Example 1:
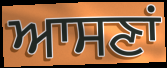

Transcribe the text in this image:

ਆਸਣਾਂ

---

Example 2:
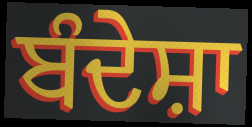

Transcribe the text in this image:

ਬੰਦੇਸ਼ਾ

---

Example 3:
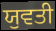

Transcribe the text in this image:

ਯੁਵਤੀ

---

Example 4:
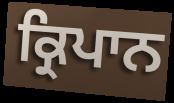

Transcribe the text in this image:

ਕ੍ਰਿਪਾਨ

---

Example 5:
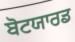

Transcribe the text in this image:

ਬੋਟਯਾਰਡ